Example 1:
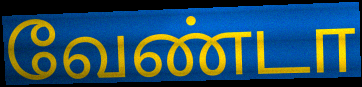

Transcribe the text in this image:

வேண்டா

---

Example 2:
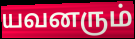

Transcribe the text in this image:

யவனரும்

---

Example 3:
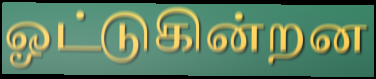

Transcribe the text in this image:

ஓட்டுகின்றன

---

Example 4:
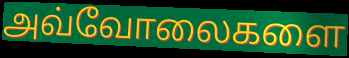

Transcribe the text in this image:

அவ்வோலைகளை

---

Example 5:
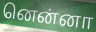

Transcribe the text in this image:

னென்னா